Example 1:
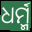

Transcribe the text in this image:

ଧର୍ମ୍ମ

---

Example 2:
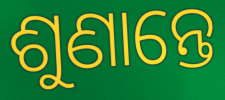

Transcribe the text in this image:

ଶୁଣାନ୍ତେ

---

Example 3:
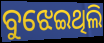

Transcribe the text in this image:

ବୁଝେଇଥିଲି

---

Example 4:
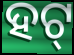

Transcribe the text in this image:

ହଟ୍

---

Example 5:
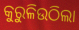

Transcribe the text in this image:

କୁରୁଳିଉଠିଲା